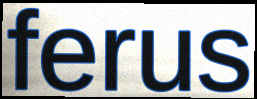
ferus